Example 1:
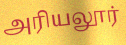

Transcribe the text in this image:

அரியலூர்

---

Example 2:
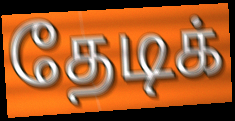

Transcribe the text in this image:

தேடிக்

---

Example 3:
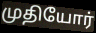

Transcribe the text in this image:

முதியோர்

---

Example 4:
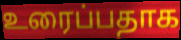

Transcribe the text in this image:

உரைப்பதாக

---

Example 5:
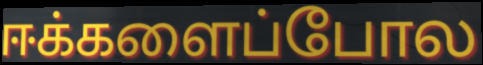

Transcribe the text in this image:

ஈக்களைப்போல